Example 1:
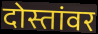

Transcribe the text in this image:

दोस्तांवर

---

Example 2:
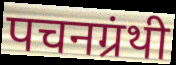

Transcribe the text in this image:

पचनग्रंथी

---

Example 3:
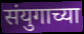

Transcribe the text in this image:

संयुगाच्या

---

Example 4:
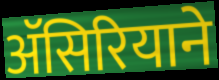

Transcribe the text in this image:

ॲसिरियाने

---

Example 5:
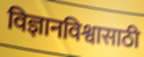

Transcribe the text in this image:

विज्ञानविश्वासाठी